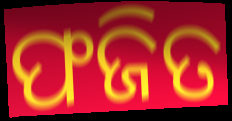
ଫଜିତ